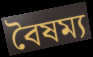
বৈষম্য